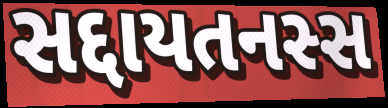
સદ્દાયતનસ્સ